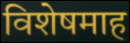
विशेषमाह